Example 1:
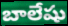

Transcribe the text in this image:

బాలేషు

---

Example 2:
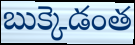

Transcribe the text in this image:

బుక్కెడంత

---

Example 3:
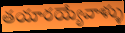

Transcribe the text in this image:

తయారయ్యేవాళ్ళు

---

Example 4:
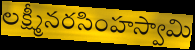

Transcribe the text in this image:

లక్ష్మీనరసింహస్వామి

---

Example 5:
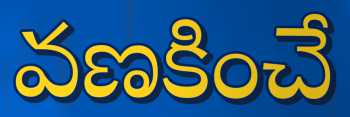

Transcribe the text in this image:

వణకించే